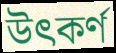
উৎকর্ণ